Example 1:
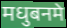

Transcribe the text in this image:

मधुबनमे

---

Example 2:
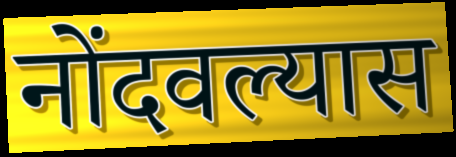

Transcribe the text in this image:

नोंदवल्यास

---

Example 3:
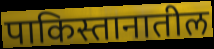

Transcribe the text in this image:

पाकिस्‍तानातील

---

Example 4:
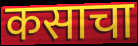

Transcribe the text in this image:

कसाचा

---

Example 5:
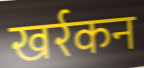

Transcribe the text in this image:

खर्रकन